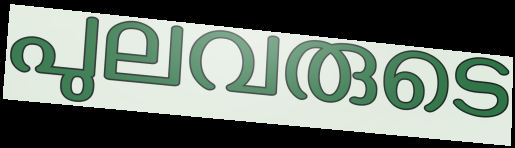
പുലവരുടെ